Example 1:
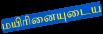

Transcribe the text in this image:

மயிரினையுடைய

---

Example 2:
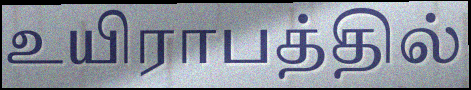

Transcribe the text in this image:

உயிராபத்தில்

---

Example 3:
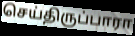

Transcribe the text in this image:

செய்திருப்பாரா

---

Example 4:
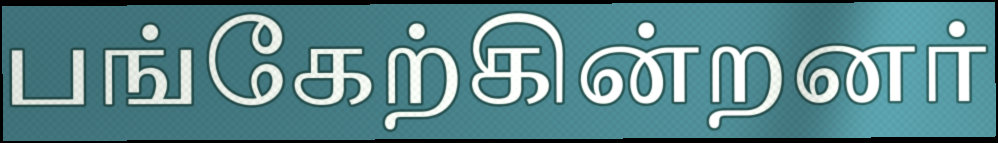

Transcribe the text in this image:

பங்கேற்கின்றனர்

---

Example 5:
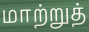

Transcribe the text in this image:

மாற்றுத்